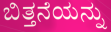
ಬಿತ್ತನೆಯನ್ನು